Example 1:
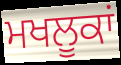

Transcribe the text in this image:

ਮਖਲੂਕਾਂ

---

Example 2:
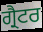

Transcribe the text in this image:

ਗ੍ਰੈਟਰ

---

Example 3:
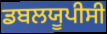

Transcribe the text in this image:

ਡਬਲਯੂਪੀਸੀ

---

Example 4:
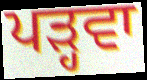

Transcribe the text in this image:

ਪੜ੍ਹਵਾ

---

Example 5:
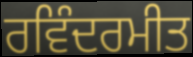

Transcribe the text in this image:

ਰਵਿੰਦਰਮੀਤ